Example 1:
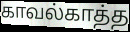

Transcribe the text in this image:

காவல்காத்த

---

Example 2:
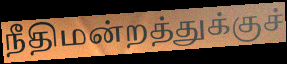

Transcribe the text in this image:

நீதிமன்றத்துக்குச்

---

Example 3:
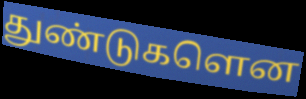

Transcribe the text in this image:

துண்டுகளென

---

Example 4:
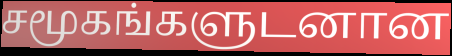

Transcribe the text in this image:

சமூகங்களுடனான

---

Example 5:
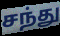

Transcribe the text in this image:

சந்து